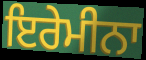
ਇਰੇਮੀਨਾ